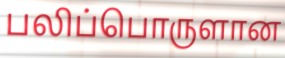
பலிப்பொருளான